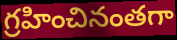
గ్రహించినంతగా